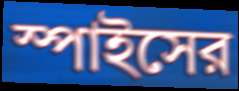
স্পাইসের